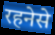
रहनेसे